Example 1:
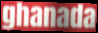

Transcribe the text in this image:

ghanada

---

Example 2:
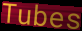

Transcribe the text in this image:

Tubes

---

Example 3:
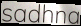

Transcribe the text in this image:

sadhna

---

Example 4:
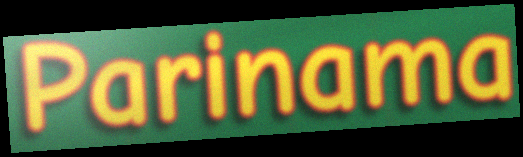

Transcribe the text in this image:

Parinama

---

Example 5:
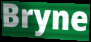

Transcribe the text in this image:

Bryne